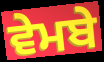
ਵੇਮਬੇ